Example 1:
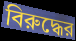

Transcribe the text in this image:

বিরুদ্ধের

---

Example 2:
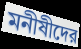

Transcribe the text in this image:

মনীষীদের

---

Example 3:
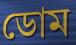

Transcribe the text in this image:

ডোম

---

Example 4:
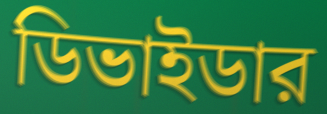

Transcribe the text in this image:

ডিভাইডার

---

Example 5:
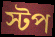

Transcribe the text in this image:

স্টপ